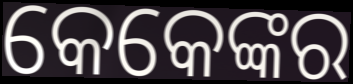
କେକେଙ୍କର